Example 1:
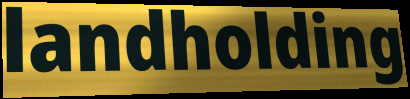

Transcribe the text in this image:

landholding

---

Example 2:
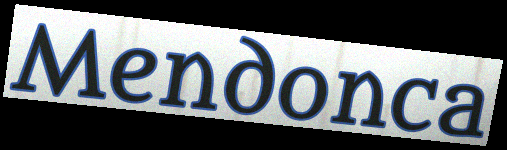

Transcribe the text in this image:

Mendonca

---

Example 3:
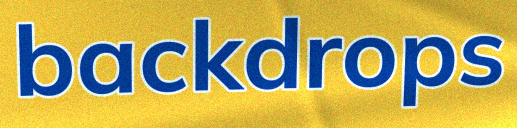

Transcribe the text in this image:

backdrops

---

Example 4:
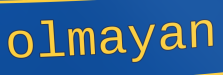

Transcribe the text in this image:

olmayan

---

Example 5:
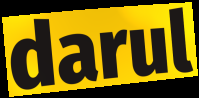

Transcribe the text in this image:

darul